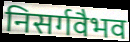
निसर्गवैभव